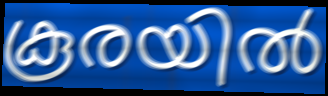
കൂരയിൽ